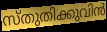
സ്തുതിക്കുവിൻ